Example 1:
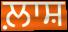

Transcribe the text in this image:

ਲ਼ਾਸ਼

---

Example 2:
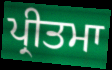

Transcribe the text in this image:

ਪ੍ਰੀਤਮਾ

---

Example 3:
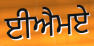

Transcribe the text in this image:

ਈਐਮਏ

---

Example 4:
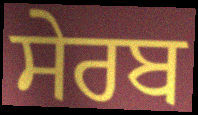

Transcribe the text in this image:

ਸੇਰਬ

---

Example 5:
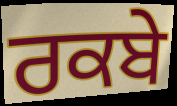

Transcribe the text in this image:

ਰਕਬੇ